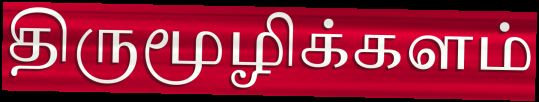
திருமூழிக்களம்